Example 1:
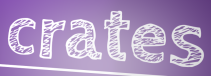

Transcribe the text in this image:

crates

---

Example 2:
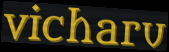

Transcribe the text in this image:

vicharu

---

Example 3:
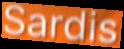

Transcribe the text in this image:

Sardis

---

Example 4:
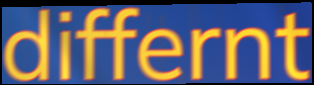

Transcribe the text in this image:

differnt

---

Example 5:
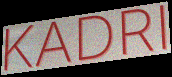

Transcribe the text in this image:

KADRI